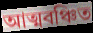
আত্মবঞ্চিত